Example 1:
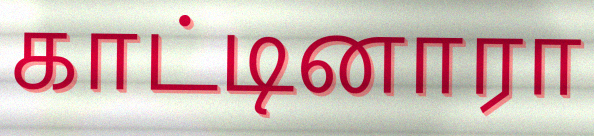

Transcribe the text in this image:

காட்டினாரா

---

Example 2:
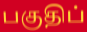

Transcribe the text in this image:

பகுதிப்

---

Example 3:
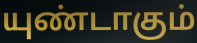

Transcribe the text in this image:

யுண்டாகும்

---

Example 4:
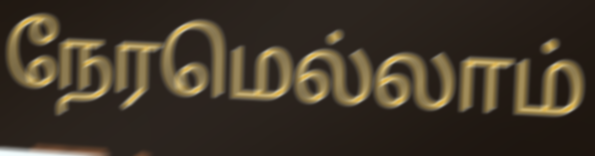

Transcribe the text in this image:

நேரமெல்லாம்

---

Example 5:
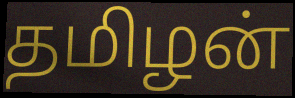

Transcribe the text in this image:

தமிழன்